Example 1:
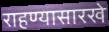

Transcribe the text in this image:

राहण्यासारखे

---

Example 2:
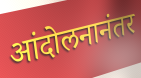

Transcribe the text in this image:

आंदोलनानंतर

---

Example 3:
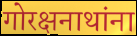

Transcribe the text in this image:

गोरक्षनाथांना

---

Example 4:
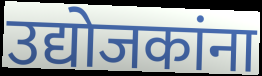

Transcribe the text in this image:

उद्योजकांना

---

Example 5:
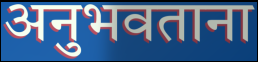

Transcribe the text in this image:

अनुभवताना